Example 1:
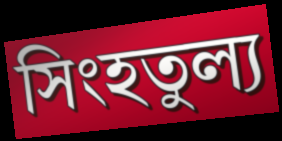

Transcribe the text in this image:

সিংহতুল্য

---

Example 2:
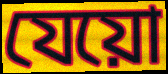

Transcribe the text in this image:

যেয়ো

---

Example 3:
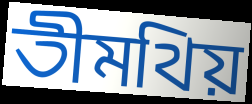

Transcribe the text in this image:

তীমথিয়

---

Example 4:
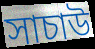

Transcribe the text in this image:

সাচাউ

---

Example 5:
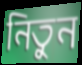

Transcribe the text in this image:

নিতুন